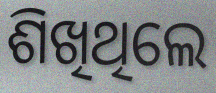
ଶିଖିଥିଲେ